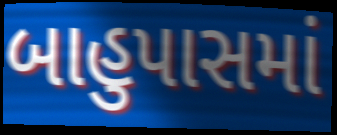
બાહુપાસમાં